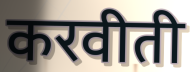
करवीती